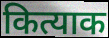
कित्याक